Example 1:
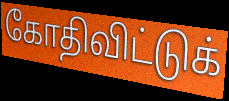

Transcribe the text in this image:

கோதிவிட்டுக்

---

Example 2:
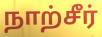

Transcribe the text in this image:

நாற்சீர்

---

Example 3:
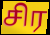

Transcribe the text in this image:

சிர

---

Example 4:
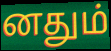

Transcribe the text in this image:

னதும்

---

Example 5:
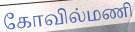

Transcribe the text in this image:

கோவில்மணி